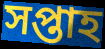
সপ্তাহ